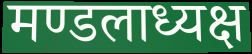
मण्डलाध्यक्ष